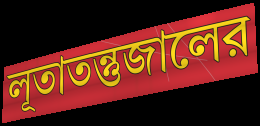
লূতাতন্তুজালের